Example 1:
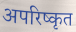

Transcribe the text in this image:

अपरिष्कृत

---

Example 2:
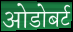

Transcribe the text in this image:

ओडोबर्ट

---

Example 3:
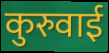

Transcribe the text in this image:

कुरुवाई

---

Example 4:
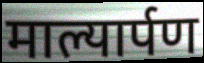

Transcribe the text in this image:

माल्यार्पण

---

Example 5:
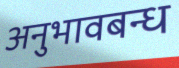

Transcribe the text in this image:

अनुभावबन्ध